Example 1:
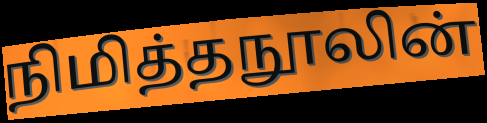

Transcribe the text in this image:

நிமித்தநூலின்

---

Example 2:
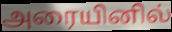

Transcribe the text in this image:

அரையினில்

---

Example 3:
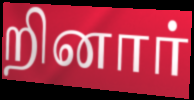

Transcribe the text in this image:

றினார்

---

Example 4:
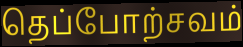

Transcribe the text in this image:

தெப்போற்சவம்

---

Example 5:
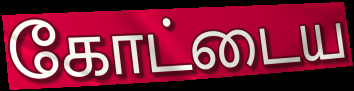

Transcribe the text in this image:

கோட்டைய